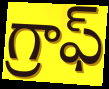
గ్రాఫ్